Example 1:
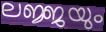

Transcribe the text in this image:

ലജ്ജയും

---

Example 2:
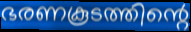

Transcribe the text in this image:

ഭരണകൂടത്തിന്റെ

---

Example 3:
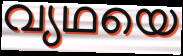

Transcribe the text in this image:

വ്യഥയെ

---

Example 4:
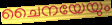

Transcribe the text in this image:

ചൈനയേയും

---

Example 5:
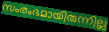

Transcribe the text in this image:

സംരംഭമായിരുന്നില്ല